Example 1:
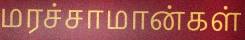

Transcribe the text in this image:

மரச்சாமான்கள்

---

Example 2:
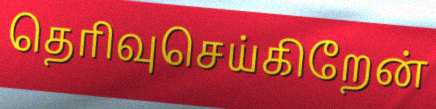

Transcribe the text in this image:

தெரிவுசெய்கிறேன்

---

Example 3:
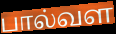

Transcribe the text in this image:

பால்வள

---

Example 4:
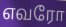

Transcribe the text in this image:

எவரோ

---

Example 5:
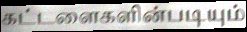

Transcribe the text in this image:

கட்டளைகளின்படியும்